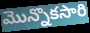
మొన్నొకసారి